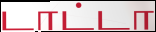
டாட்டா